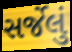
સર્જેલું